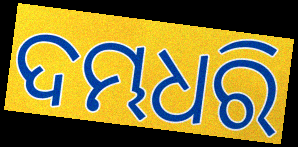
ଦମ୍ଭଧରି